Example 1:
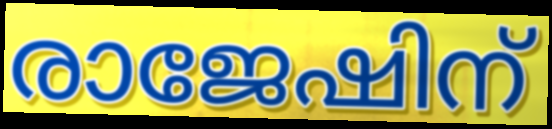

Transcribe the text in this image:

രാജേഷിന്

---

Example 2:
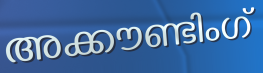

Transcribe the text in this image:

അക്കൗണ്ടിംഗ്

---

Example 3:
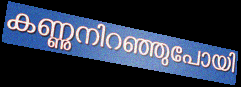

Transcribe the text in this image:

കണ്ണുനിറഞ്ഞുപോയി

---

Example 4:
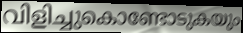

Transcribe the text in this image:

വിളിച്ചുകൊണ്ടോടുകയും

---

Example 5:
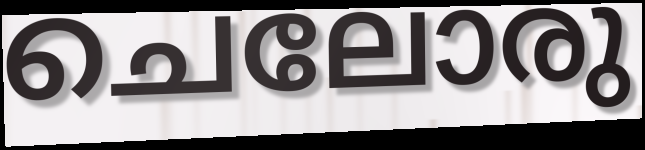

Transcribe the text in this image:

ചെലോരു